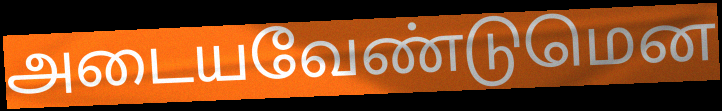
அடையவேண்டுமென